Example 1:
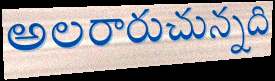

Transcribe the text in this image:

అలరారుచున్నది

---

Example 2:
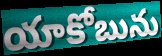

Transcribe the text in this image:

యాకోబును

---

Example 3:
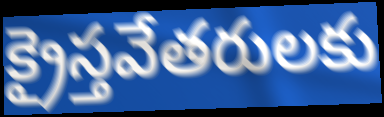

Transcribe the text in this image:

క్రైస్తవేతరులకు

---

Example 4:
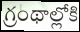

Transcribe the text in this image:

గ్రంథాల్లోకి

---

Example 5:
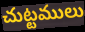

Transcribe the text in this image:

చుట్టములు